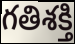
గతిశక్తి